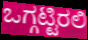
ಒಗ್ಗಟ್ಟಿರಲಿ